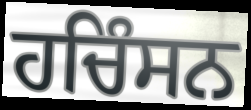
ਹਚਿੰਸਨ